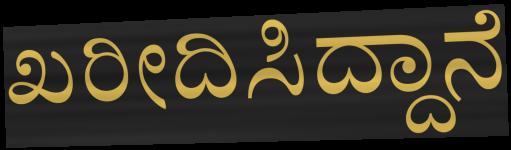
ಖರೀದಿಸಿದ್ದಾನೆ